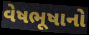
વેષભૂષાનો